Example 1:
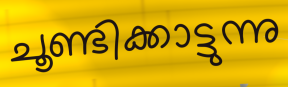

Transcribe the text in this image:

ചൂണ്ടിക്കാട്ടുന്നു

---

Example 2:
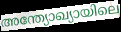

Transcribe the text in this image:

അന്ത്യോഖ്യായിലെ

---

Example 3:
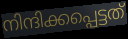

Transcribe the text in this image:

നിന്ദിക്കപ്പെട്ടത്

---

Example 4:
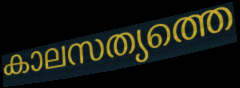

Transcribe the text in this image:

കാലസത്യത്തെ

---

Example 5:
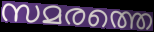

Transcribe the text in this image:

സമരത്തെ